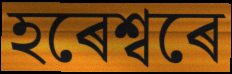
হৰেশ্বৰে